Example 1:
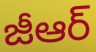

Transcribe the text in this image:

జీఆర్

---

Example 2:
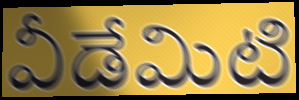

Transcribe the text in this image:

వీడేమిటి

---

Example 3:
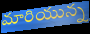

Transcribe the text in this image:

మారియున్న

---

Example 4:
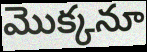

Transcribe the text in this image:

మొక్కనూ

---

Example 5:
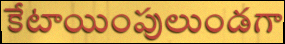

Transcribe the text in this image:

కేటాయింపులుండగా